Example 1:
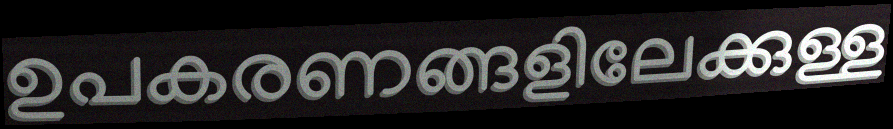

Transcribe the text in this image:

ഉപകരണങ്ങളിലേക്കുള്ള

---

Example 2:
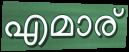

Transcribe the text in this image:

എമാര്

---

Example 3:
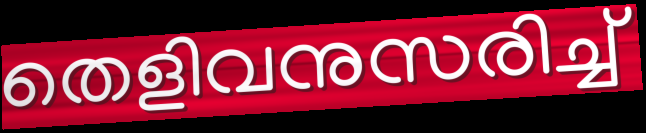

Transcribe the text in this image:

തെളിവനുസരിച്ച്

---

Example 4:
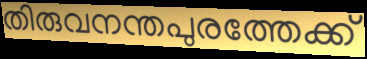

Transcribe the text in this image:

തിരുവനന്തപുരത്തേക്ക്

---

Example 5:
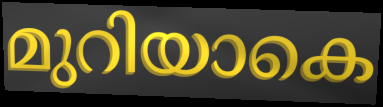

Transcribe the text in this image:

മുറിയാകെ